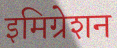
इमिग्रेशन